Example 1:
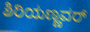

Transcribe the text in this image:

ಶಿರಿಯಣ್ಣವರ್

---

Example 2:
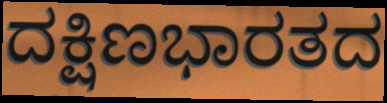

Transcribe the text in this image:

ದಕ್ಷಿಣಭಾರತದ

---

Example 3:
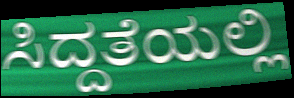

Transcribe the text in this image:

ಸಿದ್ದತೆಯಲ್ಲಿ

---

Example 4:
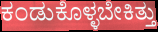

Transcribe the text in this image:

ಕಂಡುಕೊಳ್ಳಬೇಕಿತ್ತು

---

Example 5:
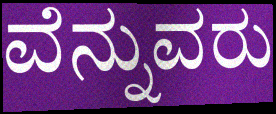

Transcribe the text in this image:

ವೆನ್ನುವರು